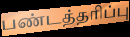
பண்டத்தரிப்பு